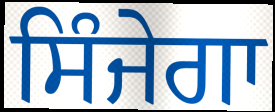
ਸਿੰਜੇਗਾ